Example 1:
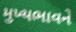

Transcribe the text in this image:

મુખ્યભાવને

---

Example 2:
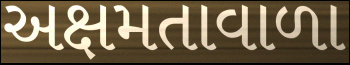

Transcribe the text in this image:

અક્ષમતાવાળા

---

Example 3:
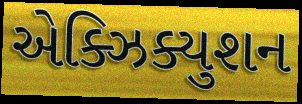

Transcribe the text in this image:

એક્ઝિક્યુશન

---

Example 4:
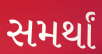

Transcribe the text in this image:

સમર્થાં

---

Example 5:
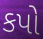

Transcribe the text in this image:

કપો